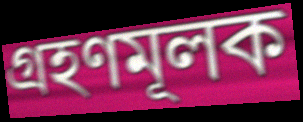
গ্রহণমূলক